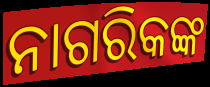
ନାଗରିକଙ୍କ